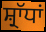
ਸ਼੍ਰਾੱਧਾਂ